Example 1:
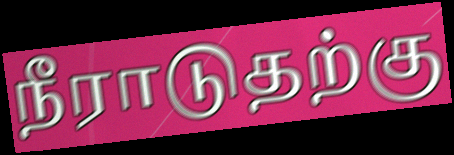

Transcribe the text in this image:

நீராடுதற்கு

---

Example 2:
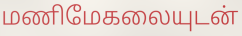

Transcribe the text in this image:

மணிமேகலையுடன்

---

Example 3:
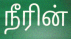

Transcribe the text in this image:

நீரின்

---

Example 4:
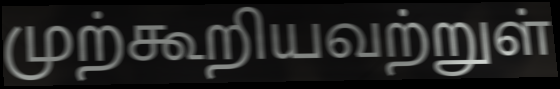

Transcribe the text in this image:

முற்கூறியவற்றுள்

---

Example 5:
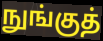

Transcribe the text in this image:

நுங்குத்